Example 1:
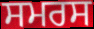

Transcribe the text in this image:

ਸਮਰਸ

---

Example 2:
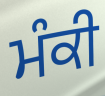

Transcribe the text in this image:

ਮੰਕੀ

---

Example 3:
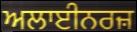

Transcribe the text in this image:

ਅਲਾਈਨਰਜ਼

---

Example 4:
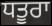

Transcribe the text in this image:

ਧਤੂਰਾ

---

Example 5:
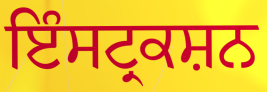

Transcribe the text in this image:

ਇੰਸਟ੍ਰਕਸ਼ਨ